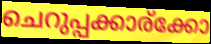
ചെറുപ്പക്കാര്ക്കോ